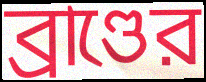
ব্রাণ্ডের